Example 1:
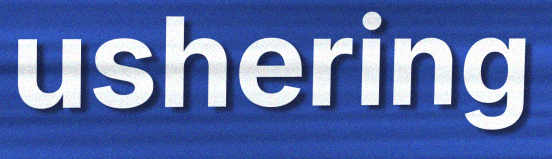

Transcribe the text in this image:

ushering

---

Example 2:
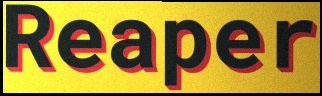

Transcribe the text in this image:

Reaper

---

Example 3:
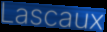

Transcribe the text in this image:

Lascaux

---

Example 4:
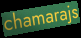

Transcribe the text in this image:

chamarajs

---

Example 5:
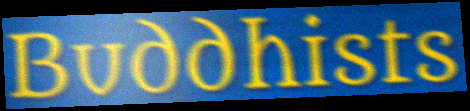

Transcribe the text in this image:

Buddhists